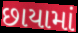
છાયામાં